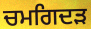
ਚਮਗਿਦੜ